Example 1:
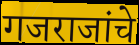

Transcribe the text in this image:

गजराजांचे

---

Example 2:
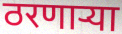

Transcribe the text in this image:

ठरणाऱ्या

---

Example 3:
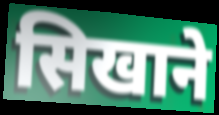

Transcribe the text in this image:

सिखाने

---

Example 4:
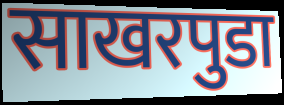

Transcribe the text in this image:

साखरपुडा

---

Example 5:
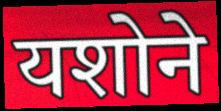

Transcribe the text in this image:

यशोने